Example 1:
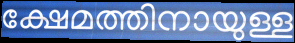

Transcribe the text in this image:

ക്ഷേമത്തിനായുള്ള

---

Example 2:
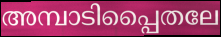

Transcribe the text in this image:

അമ്പാടിപ്പൈതലേ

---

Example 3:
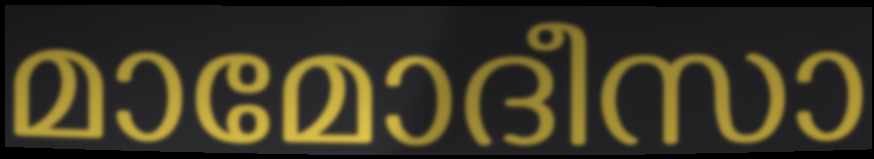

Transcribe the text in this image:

മാമോദീസാ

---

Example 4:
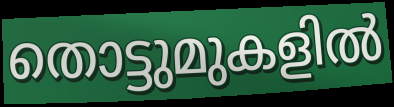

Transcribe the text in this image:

തൊട്ടുമുകളിൽ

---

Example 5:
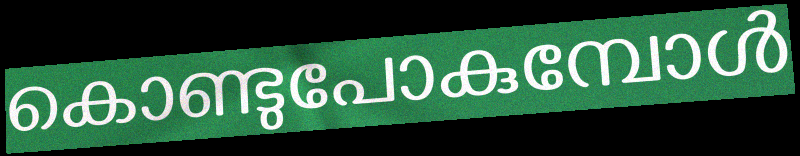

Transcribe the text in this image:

കൊണ്ടുപോകുമ്പോൾ